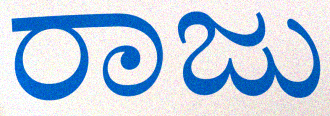
ರಾಜು